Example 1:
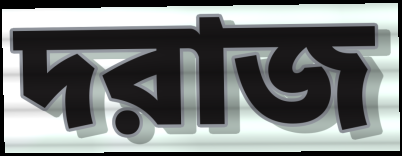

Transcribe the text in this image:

দরাজ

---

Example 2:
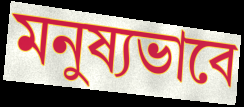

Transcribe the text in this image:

মনুষ্যভাবে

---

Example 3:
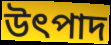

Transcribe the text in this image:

উৎপাদ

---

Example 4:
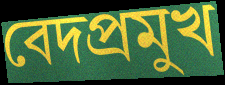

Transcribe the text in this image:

বেদপ্রমুখ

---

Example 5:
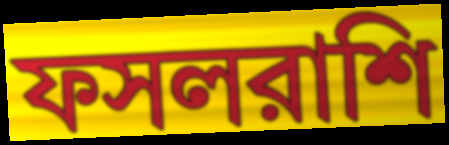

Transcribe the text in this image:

ফসলরাশি